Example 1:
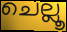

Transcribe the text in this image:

ചെല്ലൂ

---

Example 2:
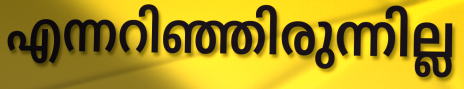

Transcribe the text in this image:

എന്നറിഞ്ഞിരുന്നില്ല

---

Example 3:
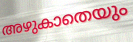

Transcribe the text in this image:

അഴുകാതെയും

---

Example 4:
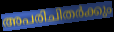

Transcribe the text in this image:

അപരിചിതർക്കും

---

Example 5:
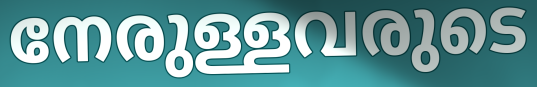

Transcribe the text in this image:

നേരുള്ളവരുടെ